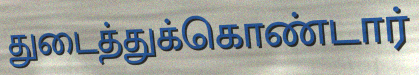
துடைத்துக்கொண்டார்